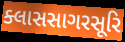
ક્લાસસાગરસૂરિ